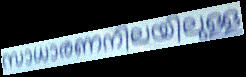
സാധാരണനിലയിലുള്ള